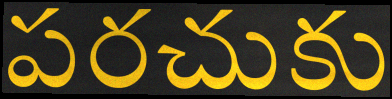
పరచుకు